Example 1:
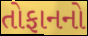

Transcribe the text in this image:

તોફાનનો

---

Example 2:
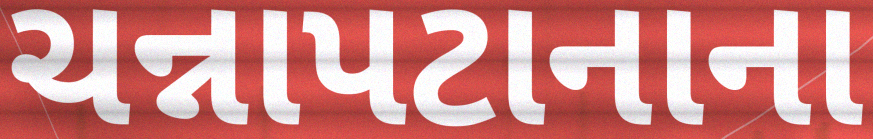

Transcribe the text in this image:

ચન્નાપટાનાના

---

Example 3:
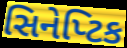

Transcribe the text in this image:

સિનેપ્ટિક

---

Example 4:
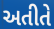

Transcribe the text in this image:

અતીતે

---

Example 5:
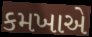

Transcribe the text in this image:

કમખાએ